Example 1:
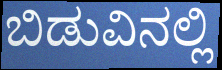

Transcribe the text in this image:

ಬಿಡುವಿನಲ್ಲಿ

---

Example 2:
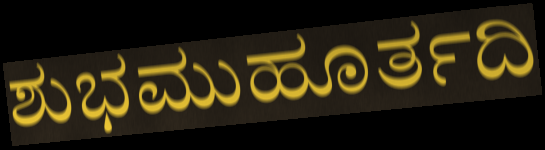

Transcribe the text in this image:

ಶುಭಮುಹೂರ್ತದಿ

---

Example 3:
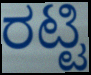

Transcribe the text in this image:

ರಟ್ಟಿ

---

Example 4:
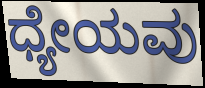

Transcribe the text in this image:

ಧ್ಯೇಯವು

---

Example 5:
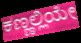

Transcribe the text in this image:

ಕಣ್ಣಲ್ಲಿಯೇ